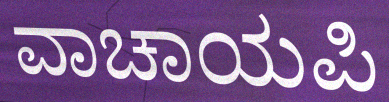
ವಾಚಾಯಪಿ